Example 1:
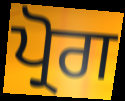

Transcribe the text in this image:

ਪ੍ਰੋਗ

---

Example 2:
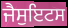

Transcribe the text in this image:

ਜੈਸੁਇਟਸ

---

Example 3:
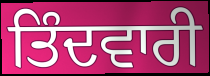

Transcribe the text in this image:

ਤਿੰਦਵਾਰੀ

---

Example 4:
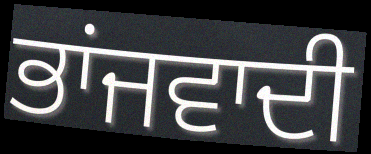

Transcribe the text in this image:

ਭਾਂਜਵਾਦੀ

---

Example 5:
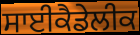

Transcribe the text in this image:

ਸਾਈਕੈਡੇਲੀਕ